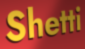
Shetti